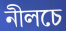
নীলচে